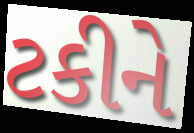
ટકીને